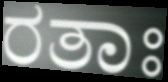
ರತಾಃ